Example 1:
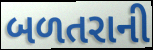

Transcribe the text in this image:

બળતરાની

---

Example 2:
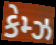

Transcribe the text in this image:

કેમ્ઝ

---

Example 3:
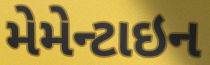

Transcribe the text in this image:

મેમેન્ટાઇન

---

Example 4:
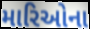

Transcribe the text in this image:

મારિઓના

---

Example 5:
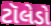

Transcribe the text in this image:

ટૉલેડો